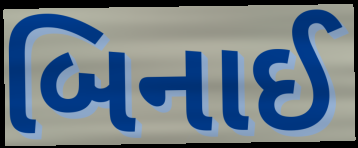
બિનાઈ